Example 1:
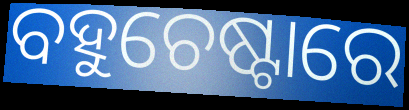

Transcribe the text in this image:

ବହୁଚେଷ୍ଟାରେ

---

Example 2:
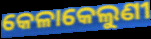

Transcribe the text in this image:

କେଳାକେଲୁଣୀ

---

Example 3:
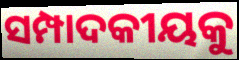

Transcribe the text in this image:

ସମ୍ପାଦକୀୟକୁ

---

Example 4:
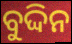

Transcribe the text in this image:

ବୁଦ୍ଦିନ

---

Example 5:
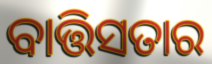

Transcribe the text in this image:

ବାତ୍ତିସତାର